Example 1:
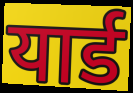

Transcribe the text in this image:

यार्ड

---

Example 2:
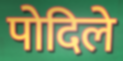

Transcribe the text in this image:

पोदिले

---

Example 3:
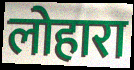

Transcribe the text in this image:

लोहारा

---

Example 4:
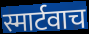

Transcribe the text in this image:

स्मार्टवाच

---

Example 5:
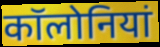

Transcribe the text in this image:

कॉलोनियां